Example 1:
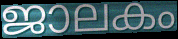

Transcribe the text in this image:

ജാലകം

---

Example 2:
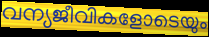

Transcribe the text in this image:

വന്യജീവികളോടെയും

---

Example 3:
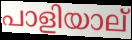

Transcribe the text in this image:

പാളിയാല്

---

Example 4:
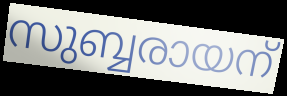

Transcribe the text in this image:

സുബ്ബരായന്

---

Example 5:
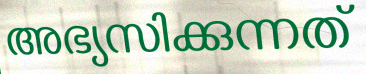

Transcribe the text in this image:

അഭ്യസിക്കുന്നത്